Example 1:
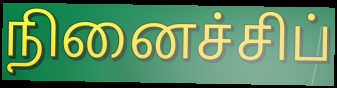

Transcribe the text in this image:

நினைச்சிப்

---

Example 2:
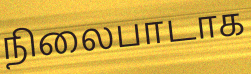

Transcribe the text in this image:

நிலைபாடாக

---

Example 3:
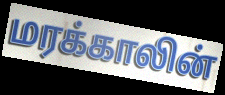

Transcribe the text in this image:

மரக்காலின்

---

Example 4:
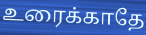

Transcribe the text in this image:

உரைக்காதே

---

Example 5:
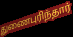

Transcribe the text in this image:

துணைபுரிந்தார்